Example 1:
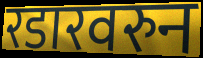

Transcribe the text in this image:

रडारवरुन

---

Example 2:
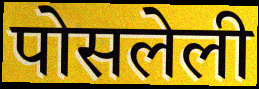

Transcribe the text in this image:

पोसलेली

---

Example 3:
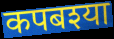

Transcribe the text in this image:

कपबश्या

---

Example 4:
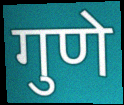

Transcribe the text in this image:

गुणे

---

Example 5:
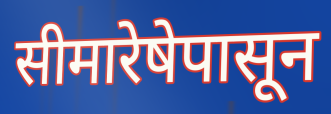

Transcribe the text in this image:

सीमारेषेपासून